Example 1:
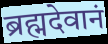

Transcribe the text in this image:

ब्रह्मदेवानं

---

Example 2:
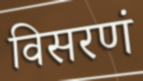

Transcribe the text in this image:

विसरणं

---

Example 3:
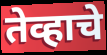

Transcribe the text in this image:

तेव्हाचे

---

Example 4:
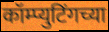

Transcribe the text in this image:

कॉम्प्युटिंगच्या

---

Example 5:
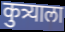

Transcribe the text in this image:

कुत्र्याला